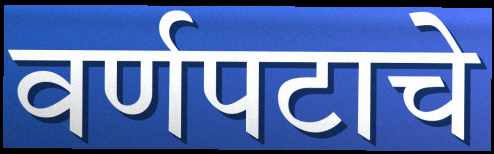
वर्णपटाचे